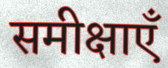
समीक्षाएँ